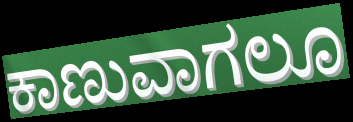
ಕಾಣುವಾಗಲೂ